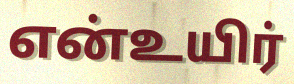
என்உயிர்